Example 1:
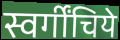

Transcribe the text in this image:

स्वर्गींचिये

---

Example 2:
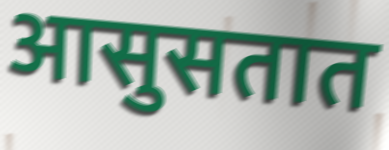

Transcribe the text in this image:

आसुसतात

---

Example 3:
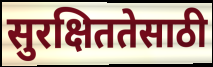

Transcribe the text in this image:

सुरक्षिततेसाठी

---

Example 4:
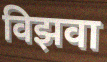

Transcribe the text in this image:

विझवा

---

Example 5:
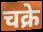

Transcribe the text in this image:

चक्रे